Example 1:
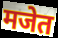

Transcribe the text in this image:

मजेत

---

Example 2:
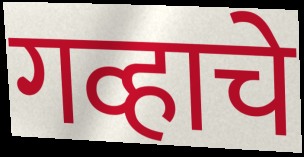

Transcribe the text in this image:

गव्हाचे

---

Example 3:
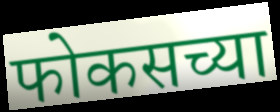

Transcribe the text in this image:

फोकसच्या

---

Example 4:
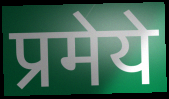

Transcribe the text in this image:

प्रमेये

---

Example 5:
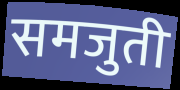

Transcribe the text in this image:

समजुती